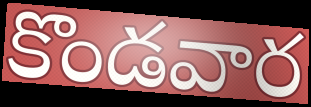
కొండవార